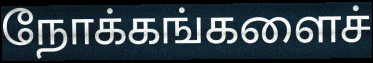
நோக்கங்களைச்